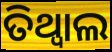
ତିଥ୍ୱାଲ